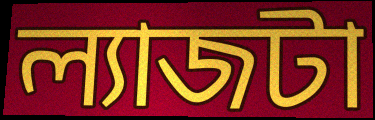
ল্যাজটা